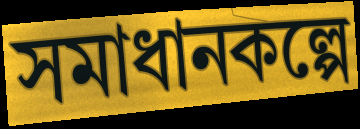
সমাধানকল্পে